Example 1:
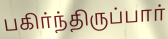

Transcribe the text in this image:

பகிர்ந்திருப்பார்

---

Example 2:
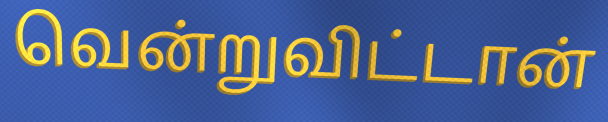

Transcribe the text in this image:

வென்றுவிட்டான்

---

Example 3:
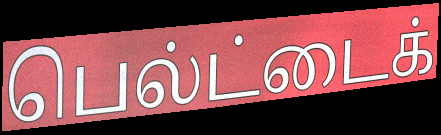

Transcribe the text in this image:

பெல்ட்டைக்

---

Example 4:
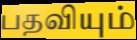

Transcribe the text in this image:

பதவியும்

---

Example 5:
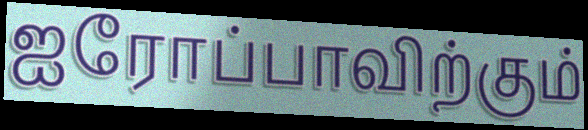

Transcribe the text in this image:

ஐரோப்பாவிற்கும்